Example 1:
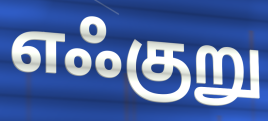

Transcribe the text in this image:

எஃகுறு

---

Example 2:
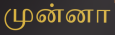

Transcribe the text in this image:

முன்னா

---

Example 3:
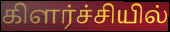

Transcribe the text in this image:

கிளர்ச்சியில்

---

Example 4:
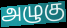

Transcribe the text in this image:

அழுகு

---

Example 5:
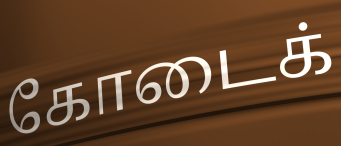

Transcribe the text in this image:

கோடைக்